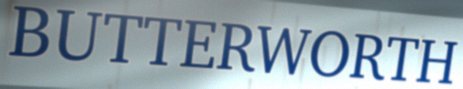
BUTTERWORTH